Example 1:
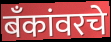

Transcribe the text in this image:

बँकांवरचे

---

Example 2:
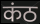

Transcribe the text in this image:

कंठ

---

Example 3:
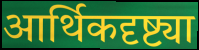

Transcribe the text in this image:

आर्थिकदृष्ट्या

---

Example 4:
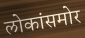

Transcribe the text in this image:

लोकांसमोर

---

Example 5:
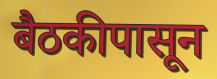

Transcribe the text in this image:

बैठकीपासून